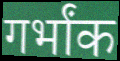
गर्भांक